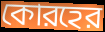
কোরহের